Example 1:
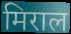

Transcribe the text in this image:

मिराल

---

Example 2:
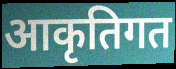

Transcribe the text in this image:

आकृतिगत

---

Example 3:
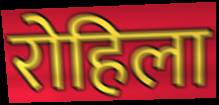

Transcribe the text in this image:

रोहिला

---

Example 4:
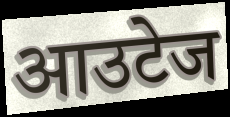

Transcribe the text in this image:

आउटेज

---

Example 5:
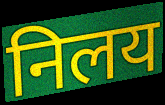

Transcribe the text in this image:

निलय